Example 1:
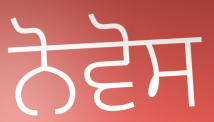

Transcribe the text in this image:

ਨੋਵੋਸ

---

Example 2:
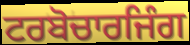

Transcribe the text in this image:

ਟਰਬੋਚਾਰਜਿੰਗ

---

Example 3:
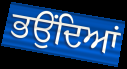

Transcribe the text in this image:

ਭਉਂਦਿਆਂ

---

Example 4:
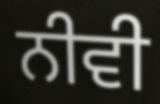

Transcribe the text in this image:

ਨੀਵੀ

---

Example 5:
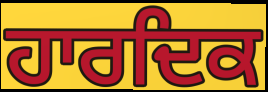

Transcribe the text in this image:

ਹਾਰਦਿਕ